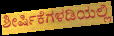
ಶೀರ್ಷಿಕೆಗಳಡಿಯಲ್ಲಿ